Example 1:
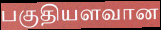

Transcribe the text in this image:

பகுதியளவான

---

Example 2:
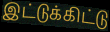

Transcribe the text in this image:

இட்டுக்கிட்டு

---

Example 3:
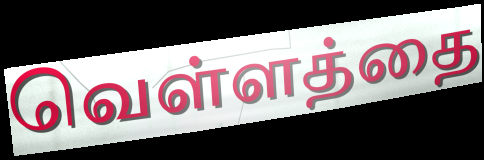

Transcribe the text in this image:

வெள்ளத்தை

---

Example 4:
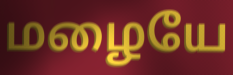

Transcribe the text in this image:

மழையே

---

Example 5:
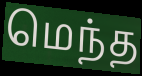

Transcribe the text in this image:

மெந்த